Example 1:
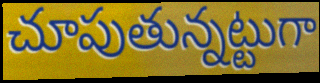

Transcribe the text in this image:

చూపుతున్నట్టుగా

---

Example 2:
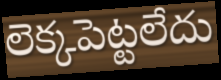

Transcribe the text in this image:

లెక్కపెట్టలేదు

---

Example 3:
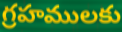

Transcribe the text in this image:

గ్రహములకు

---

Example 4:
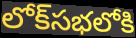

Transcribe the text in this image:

లోక్‌సభలోకి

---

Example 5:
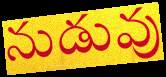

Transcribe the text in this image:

నుడువు